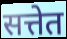
सत्तेत